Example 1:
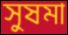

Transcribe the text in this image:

সুষমা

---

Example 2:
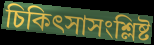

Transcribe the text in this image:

চিকিৎসাসংশ্লিষ্ট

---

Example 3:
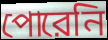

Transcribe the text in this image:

পোরেনি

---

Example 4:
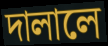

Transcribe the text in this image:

দালালে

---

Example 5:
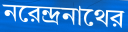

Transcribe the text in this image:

নরেন্দ্রনাথের